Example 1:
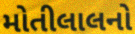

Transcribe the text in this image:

મોતીલાલનો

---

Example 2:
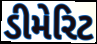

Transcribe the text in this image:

ડીમેરિટ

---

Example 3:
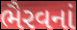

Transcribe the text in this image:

ભૈરવનાં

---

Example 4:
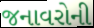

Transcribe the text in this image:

જનાવરોની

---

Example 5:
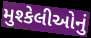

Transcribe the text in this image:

મુશ્કેલીઓનું